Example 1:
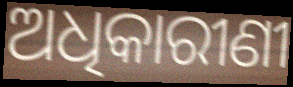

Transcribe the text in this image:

ଅଧିକାରୀଣୀ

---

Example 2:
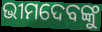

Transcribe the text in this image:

ଭୀମଦେବଙ୍କୁ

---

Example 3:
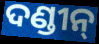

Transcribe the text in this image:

ଦଣ୍ଡୀନ୍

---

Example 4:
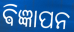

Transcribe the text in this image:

ଵିଜ୍ଞାପନ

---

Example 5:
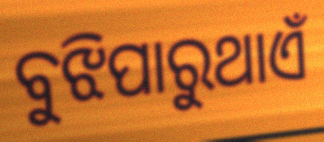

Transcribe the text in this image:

ବୁଝିପାରୁଥାଏଁ